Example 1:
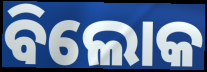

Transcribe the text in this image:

ବିଲୋକ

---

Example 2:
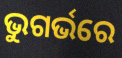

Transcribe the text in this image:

ଭୁଗର୍ଭରେ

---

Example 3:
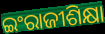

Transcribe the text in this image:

ଇଂରାଜୀଶିକ୍ଷା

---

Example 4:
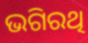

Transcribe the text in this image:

ଭଗିରଥି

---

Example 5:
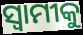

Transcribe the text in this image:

ସ୍ୱାମୀକୁ